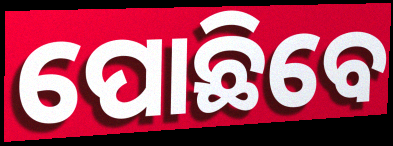
ପୋଛିବେ